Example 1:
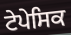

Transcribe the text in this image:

ਟੇਪੇਸਿਕ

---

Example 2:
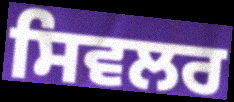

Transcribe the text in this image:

ਸਿਵਲਰ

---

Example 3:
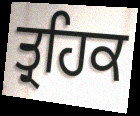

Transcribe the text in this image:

ਤ੍ਰਹਿਕ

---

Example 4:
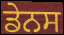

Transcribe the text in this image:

ਡੇਨਸ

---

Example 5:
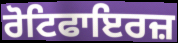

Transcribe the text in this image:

ਰੋਟਿਫਾਇਰਜ਼